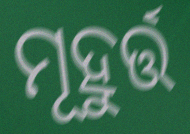
ମୂହୁର୍ତ୍ତ